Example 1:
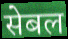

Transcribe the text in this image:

सेबल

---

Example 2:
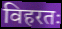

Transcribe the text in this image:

विहरतः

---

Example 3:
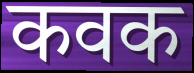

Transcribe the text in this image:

कवक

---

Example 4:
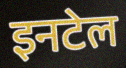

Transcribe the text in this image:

इनटेल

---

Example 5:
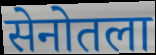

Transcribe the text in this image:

सेनोतला